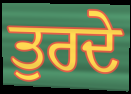
ਤੁਰਦੇ